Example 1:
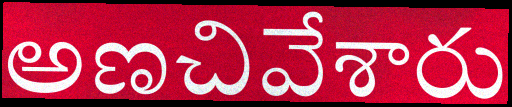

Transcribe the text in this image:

అణచివేశారు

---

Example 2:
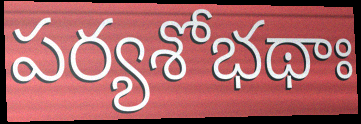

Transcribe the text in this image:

పర్యశోభథాః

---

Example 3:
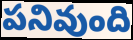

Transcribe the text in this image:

పనివుంది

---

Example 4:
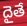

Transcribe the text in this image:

దైతే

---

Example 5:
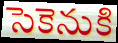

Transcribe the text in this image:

సెకెనుకి